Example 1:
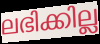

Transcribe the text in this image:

ലഭിക്കില്ല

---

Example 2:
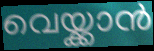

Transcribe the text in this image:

വെയ്ക്കാൻ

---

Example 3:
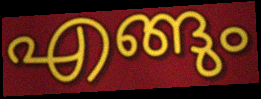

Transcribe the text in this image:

എങ്ങും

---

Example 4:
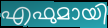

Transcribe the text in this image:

എഫുമായി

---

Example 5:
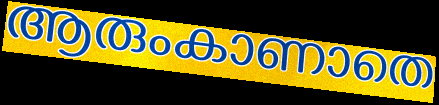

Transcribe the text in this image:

ആരുംകാണാതെ